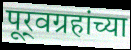
पूर्वग्रहांच्या